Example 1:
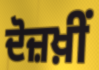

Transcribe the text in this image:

ਦੋਜ਼ਖ਼ੀਂ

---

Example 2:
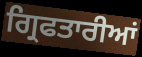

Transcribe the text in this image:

ਗ੍ਰਿਫਤਾਰੀਆਂ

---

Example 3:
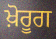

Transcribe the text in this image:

ਖ਼ੋਰੂਗ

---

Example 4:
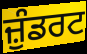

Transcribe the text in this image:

ਜ਼ੁੰਡਰਟ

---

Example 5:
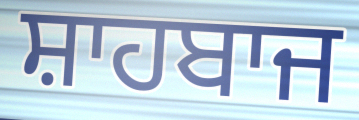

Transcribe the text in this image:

ਸ਼ਾਹਬਾਜ